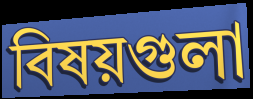
বিষয়গুলা